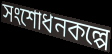
সংশোধনকল্পে